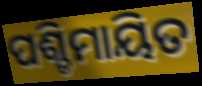
ପଶ୍ଚିମାୟିତ